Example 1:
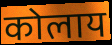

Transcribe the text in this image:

कोलाय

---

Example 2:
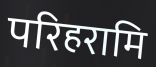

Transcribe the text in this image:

परिहरामि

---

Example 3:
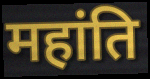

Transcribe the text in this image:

महांति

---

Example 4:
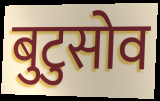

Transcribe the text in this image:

बुटुसोव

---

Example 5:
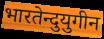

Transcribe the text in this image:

भारतेन्दुयुगीन